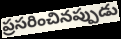
ప్రసరించినప్పుడు